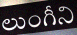
లుంగీని